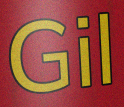
Gil